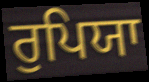
ਰੁਪਿਯਾ